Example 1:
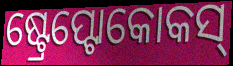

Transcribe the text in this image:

ଷ୍ଟ୍ରେପ୍ଟୋକୋକସ୍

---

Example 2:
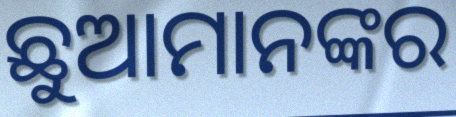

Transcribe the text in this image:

ଛୁଆମାନଙ୍କର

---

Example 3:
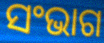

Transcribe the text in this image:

ସଂଭାଗ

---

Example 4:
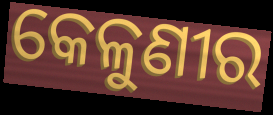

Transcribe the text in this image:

କେଳୁଣୀର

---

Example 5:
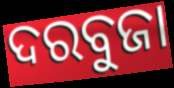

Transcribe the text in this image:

ଦରବୁଜା